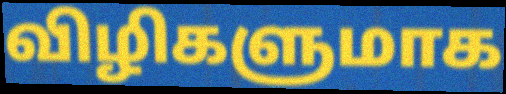
விழிகளுமாக